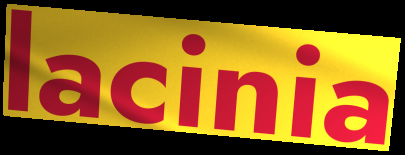
lacinia